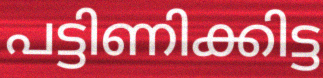
പട്ടിണിക്കിട്ട